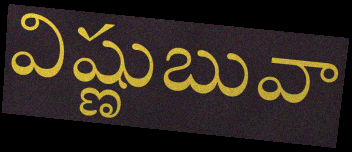
విష్ణుబువా